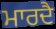
ਮਾਰਦੈ